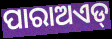
ପାରାଅଏଡ୍